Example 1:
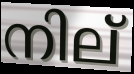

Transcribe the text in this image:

നില്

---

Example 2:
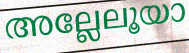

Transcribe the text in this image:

അല്ലേലൂയാ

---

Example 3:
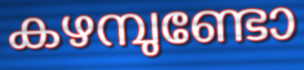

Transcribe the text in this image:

കഴമ്പുണ്ടോ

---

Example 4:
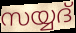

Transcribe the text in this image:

സയ്യദ്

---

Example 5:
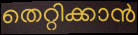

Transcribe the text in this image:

തെറ്റിക്കാൻ